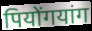
पियोंगयांग